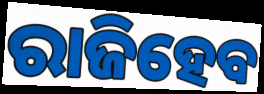
ରାଜିହେବ